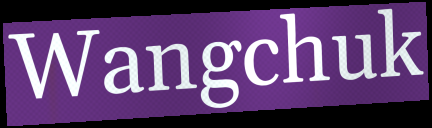
Wangchuk